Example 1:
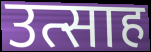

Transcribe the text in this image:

उत्साह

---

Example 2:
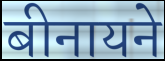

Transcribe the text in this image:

बीनायने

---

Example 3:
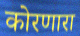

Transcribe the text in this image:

कोरणारा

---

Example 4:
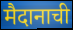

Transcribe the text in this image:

मैदानाची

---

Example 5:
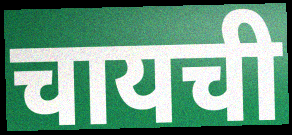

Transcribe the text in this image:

चायची